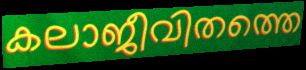
കലാജീവിതത്തെ